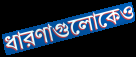
ধারণাগুলোকেও